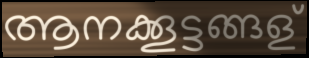
ആനക്കൂട്ടങ്ങള്